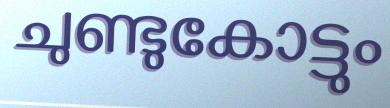
ചുണ്ടുകോട്ടും